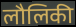
लौलिकी